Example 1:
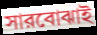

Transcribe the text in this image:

সারবোঝাই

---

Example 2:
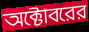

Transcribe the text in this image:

অক্টোবরের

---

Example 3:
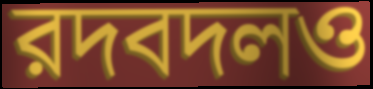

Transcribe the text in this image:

রদবদলও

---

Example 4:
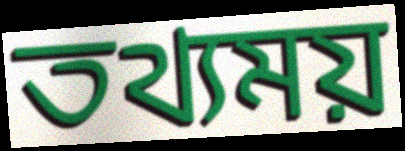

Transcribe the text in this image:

তথ্যময়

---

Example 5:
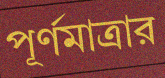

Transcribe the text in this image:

পূর্ণমাত্রার